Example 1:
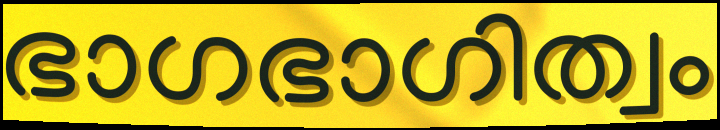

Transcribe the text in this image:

ഭാഗഭാഗിത്വം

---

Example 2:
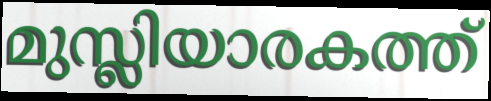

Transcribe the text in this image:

മുസ്ലിയാരകത്ത്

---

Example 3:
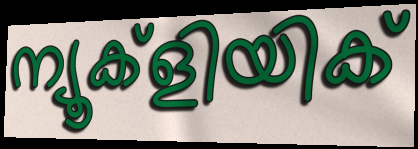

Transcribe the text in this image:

ന്യൂക്ളിയിക്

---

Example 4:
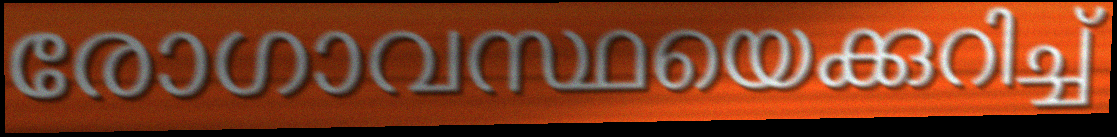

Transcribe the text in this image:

രോഗാവസ്ഥയെക്കുറിച്ച്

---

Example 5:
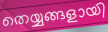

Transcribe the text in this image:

തെയ്യങ്ങളായി